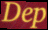
Dep